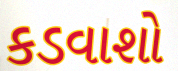
કડવાશો